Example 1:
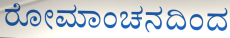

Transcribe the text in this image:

ರೋಮಾಂಚನದಿಂದ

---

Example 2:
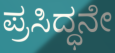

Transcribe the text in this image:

ಪ್ರಸಿದ್ಧನೇ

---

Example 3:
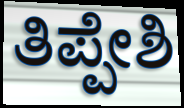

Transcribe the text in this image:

ತಿಪ್ಪೇಶಿ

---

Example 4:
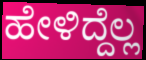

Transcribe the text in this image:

ಹೇಳಿದ್ದೆಲ್ಲ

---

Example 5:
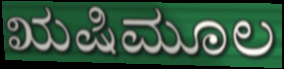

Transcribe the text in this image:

ಋಷಿಮೂಲ